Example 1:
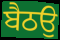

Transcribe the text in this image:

ਬੈਠਉ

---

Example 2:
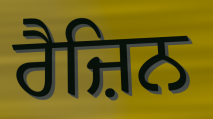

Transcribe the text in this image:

ਰੈਜ਼ਿਨ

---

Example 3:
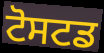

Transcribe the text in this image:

ਟੋਸਟਡ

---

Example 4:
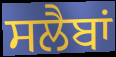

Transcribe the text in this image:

ਸਲੈਬਾਂ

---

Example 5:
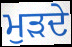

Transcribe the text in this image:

ਮੁਡ਼ਦੇ